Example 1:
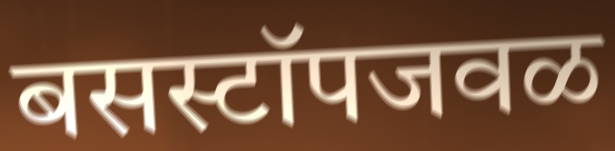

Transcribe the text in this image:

बसस्टॉपजवळ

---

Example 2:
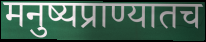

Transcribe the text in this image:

मनुष्यप्राण्यातच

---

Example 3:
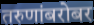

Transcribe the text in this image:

तरुणांबरोबर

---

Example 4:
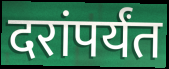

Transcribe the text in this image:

दरांपर्यंत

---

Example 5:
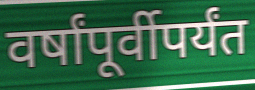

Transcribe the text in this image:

वर्षांपूर्वीपर्यंत